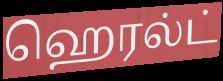
ஹெரல்ட்